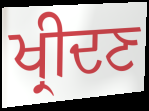
ਖ੍ਰੀਦਣ